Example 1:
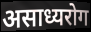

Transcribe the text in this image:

असाध्यरोग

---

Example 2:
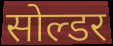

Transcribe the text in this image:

सोल्डर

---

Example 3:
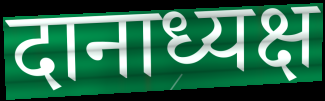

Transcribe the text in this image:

दानाध्यक्ष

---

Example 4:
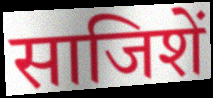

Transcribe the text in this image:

साजिशें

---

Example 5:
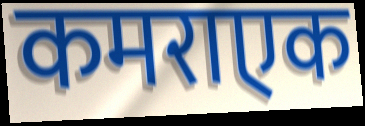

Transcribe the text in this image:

कमराएक